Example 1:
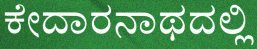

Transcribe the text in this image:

ಕೇದಾರನಾಥದಲ್ಲಿ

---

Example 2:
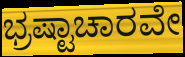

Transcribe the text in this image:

ಭ್ರಷ್ಟಾಚಾರವೇ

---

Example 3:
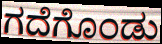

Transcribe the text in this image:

ಗದೆಗೊಂಡು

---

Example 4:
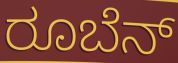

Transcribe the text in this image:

ರೂಬೆನ್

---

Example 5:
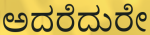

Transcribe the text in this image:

ಅದರೆದುರೇ